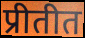
प्रीतीत